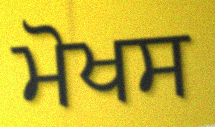
ਮੋਖਸ